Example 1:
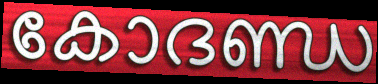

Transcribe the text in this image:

കോദണ്ഡ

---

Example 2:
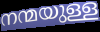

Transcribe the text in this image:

നന്മയുള്ള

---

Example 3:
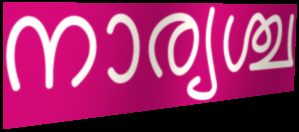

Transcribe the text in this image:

നാര്യശ്ച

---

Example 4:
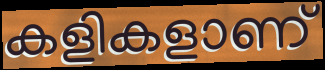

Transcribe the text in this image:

കളികളാണ്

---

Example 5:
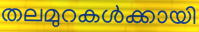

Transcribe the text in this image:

തലമുറകൾക്കായി